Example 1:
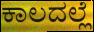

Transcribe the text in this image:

ಕಾಲದಲ್ಲೆ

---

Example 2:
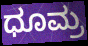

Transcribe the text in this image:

ಧೂಮ್ರ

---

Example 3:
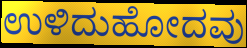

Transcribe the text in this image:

ಉಳಿದುಹೋದವು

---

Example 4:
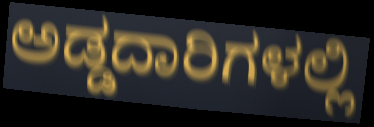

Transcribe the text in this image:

ಅಡ್ಡದಾರಿಗಳಲ್ಲಿ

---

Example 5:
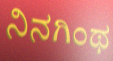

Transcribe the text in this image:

ನಿನಗಿಂಥ